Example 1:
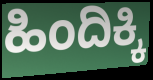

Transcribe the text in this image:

ಹಿಂದಿಕ್ಕಿ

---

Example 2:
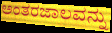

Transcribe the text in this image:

ಅಂತರಜಾಲವನ್ನು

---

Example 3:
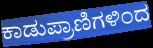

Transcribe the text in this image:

ಕಾಡುಪ್ರಾಣಿಗಳಿಂದ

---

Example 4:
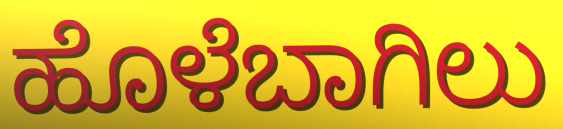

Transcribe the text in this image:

ಹೊಳೆಬಾಗಿಲು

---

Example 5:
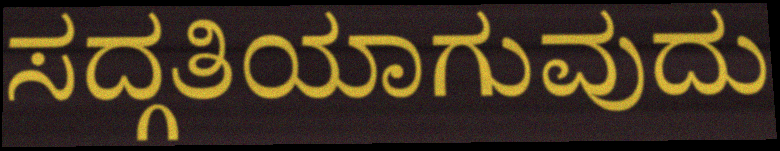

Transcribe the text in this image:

ಸದ್ಗತಿಯಾಗುವುದು